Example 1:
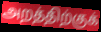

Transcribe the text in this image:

அறத்திற்குக்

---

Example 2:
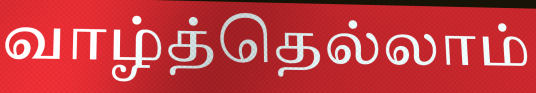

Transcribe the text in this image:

வாழ்த்தெல்லாம்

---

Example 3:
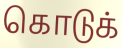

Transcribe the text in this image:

கொடுக்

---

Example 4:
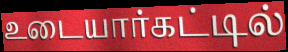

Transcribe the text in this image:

உடையார்கட்டில்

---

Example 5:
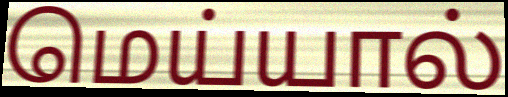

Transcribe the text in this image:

மெய்யால்